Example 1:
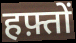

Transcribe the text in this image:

हफ़्तों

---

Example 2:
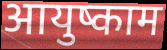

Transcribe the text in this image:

आयुष्काम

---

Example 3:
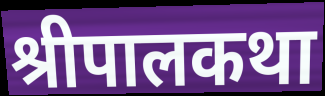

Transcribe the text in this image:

श्रीपालकथा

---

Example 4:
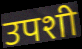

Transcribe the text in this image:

उपशी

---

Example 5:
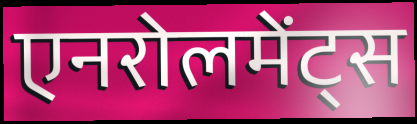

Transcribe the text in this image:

एनरोलमेंट्स